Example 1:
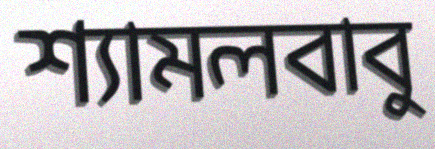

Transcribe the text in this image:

শ্যামলবাবু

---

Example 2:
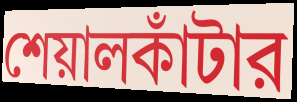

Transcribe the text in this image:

শেয়ালকাঁটার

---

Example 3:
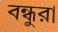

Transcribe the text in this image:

বন্ধুরা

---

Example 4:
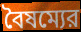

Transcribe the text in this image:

বৈষম্যের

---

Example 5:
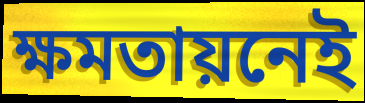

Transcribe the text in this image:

ক্ষমতায়নেই